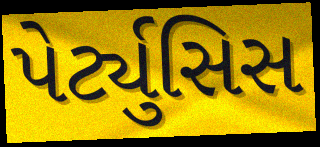
પેર્ટ્યુસિસ